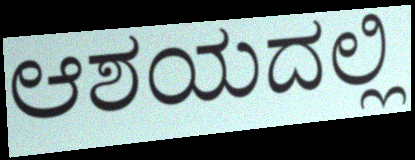
ಆಶಯದಲ್ಲಿ